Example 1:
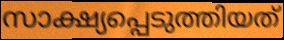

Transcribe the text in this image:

സാക്ഷ്യപ്പെടുത്തിയത്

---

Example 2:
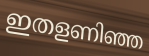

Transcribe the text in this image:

ഇതളണിഞ്ഞ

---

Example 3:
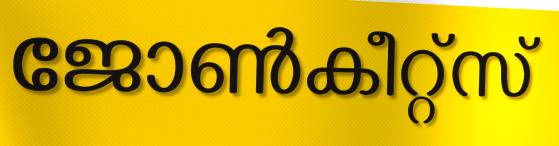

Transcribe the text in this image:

ജോൺകീറ്റ്സ്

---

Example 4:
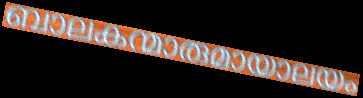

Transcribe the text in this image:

ബാലകന്മാരുമായാലയം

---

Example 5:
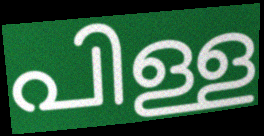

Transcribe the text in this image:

പിള്ള